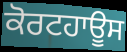
ਕੋਰਟਹਾਊਸ